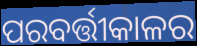
ପରବର୍ତ୍ତୀକାଳର